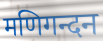
मणिगन्दन